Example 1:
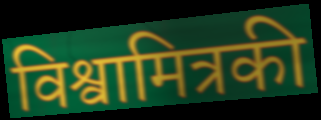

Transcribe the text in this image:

विश्वामित्रकी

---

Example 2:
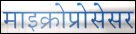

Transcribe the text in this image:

माइक्रोप्रोसेसर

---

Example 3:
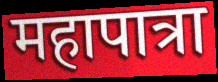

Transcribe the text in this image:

महापात्रा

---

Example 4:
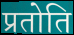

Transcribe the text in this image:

प्रतोति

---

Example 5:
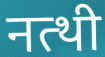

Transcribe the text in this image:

नत्‍थी